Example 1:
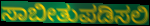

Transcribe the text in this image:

ಸಾಬೀತುಪಡಿಸಲಿ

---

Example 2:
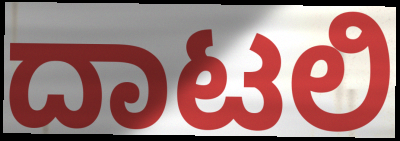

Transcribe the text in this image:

ದಾಟಲಿ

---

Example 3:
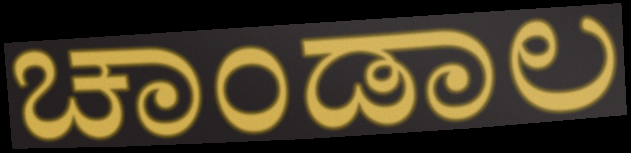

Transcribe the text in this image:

ಚಾಂಡಾಲ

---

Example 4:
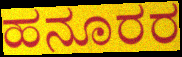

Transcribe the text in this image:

ಹನೂರರ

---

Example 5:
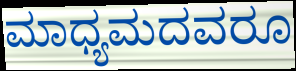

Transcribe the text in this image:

ಮಾಧ್ಯಮದವರೂ